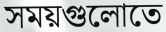
সময়গুলোতে